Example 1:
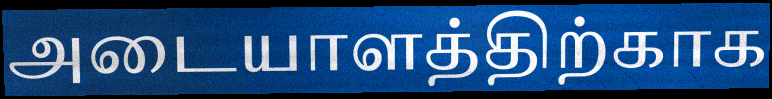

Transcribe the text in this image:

அடையாளத்திற்காக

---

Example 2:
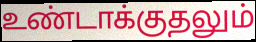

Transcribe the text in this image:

உண்டாக்குதலும்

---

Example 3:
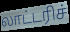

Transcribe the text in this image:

லாட்டரிச்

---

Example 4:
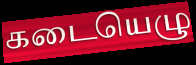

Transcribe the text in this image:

கடையெழு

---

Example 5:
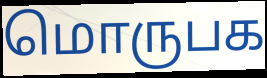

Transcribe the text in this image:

மொருபக